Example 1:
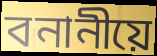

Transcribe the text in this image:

বনানীয়ে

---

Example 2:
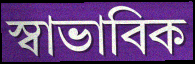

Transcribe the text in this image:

স্বাভাবিক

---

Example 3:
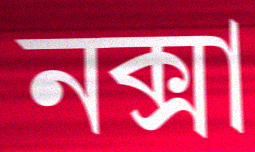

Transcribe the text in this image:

নক্সা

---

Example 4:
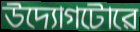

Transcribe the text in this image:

উদ্যোগটোৱে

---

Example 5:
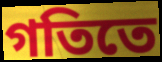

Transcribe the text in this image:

গতিতে